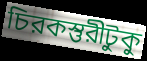
চিরকস্তুরীটুকু